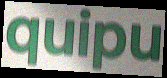
quipu